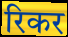
रिकर